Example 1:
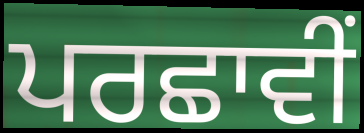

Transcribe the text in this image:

ਪਰਛਾਵੀਂ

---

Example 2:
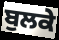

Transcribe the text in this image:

ਬੁਲਕੇ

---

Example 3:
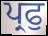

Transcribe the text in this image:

ਪ੍ਰਫੁ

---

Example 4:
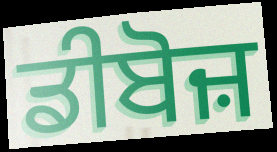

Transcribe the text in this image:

ਡੀਬੋਜ਼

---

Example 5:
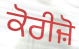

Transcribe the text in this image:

ਕੋਰੀਜ਼ੋ